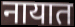
नायात